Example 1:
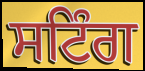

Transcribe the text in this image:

ਸਟਿੰਗ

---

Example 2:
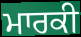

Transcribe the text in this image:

ਮਾਰਕੀ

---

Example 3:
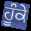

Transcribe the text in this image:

ਹੂੰਕੇ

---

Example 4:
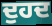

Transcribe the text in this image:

ਦੁਹਦ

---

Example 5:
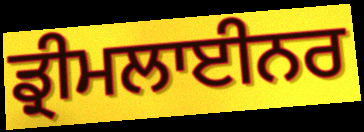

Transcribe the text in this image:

ਡ੍ਰੀਮਲਾਈਨਰ